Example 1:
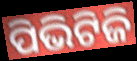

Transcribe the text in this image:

ପିଭିଟିଜି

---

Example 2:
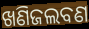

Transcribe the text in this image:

ଖଣିଜଲବଣ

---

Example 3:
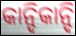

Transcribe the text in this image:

କାନ୍ଦିକାନ୍ଦି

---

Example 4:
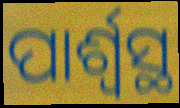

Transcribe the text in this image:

ପାର୍ଶ୍ୱସ୍ଥ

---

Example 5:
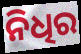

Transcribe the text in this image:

ନିଧିର